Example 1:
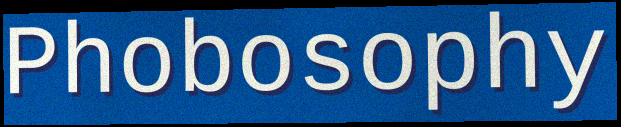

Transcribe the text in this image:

Phobosophy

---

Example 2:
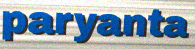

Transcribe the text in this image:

paryanta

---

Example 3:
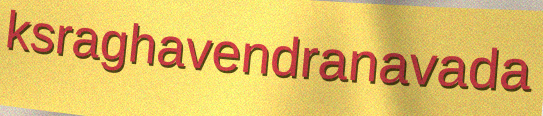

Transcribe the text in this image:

ksraghavendranavada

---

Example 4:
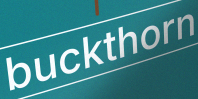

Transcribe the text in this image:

buckthorn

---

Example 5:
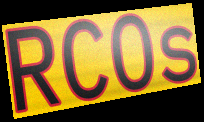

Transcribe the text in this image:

RCOs